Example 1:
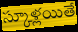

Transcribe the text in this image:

స్కూళ్లయితే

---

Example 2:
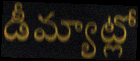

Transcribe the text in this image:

డీమ్యాట్లో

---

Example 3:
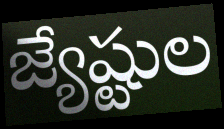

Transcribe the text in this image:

జ్యేష్టుల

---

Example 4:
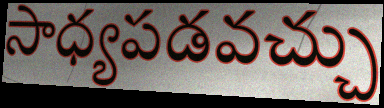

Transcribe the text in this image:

సాధ్యపడవచ్చు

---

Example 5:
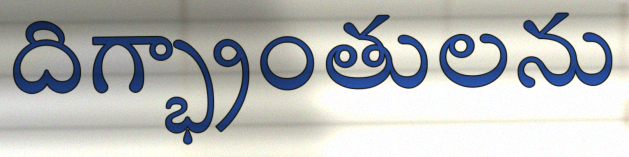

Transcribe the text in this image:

దిగ్భ్రాంతులను